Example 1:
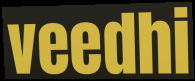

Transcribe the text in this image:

veedhi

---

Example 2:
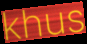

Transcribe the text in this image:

khus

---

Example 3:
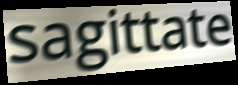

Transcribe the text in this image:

sagittate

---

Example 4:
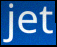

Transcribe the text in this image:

jet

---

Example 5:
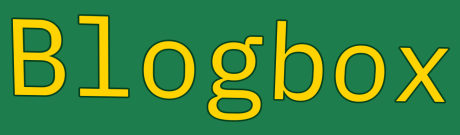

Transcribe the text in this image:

Blogbox